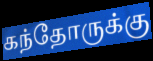
கந்தோருக்கு